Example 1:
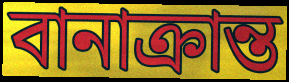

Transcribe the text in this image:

বানাক্ৰান্ত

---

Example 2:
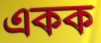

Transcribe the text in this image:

একক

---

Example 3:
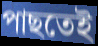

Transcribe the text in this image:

পাছতেই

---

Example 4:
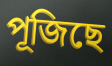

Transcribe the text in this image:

পূজিছে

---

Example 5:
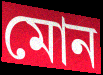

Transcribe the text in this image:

মোন